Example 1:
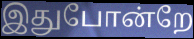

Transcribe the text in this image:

இதுபோன்றே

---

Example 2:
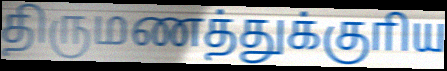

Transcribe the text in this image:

திருமணத்துக்குரிய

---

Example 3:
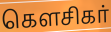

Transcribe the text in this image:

கௌசிகர்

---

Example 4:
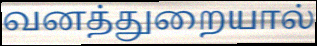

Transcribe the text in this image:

வனத்துறையால்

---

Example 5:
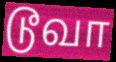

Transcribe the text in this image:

டூவா